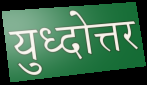
युध्दोत्तर